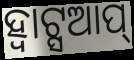
ହ୍ୱାଟ୍ସଆପ୍